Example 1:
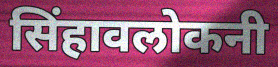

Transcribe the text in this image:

सिंहावलोकनी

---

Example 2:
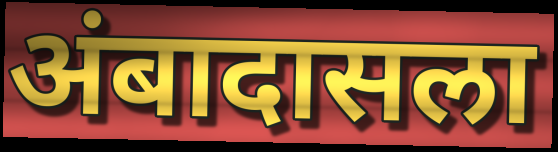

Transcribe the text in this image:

अंबादासला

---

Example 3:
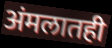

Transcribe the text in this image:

अंमलातही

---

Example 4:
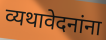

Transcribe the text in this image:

व्यथावेदनांना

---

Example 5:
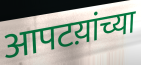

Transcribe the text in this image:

आपटय़ांच्या